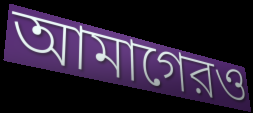
আমাগেরও